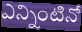
ఎన్నింటినో